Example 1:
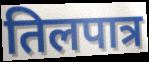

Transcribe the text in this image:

तिलपात्र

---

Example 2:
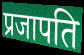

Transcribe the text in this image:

प्रजापति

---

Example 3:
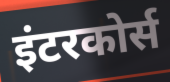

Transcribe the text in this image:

इंटरकोर्स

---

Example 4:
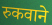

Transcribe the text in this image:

रुकवाने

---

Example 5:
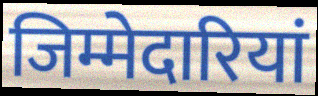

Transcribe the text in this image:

जिम्मेदारियां